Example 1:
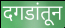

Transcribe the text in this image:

दगडांतून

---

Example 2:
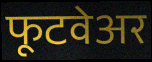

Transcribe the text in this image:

फूटवेअर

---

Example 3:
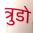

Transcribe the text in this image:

त्रुडो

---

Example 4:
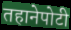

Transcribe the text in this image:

तहानेपोटी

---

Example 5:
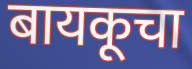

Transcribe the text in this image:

बायकूचा